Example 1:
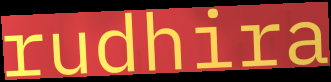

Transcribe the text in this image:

rudhira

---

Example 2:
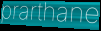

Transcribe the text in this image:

prarthane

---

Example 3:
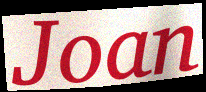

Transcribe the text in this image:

Joan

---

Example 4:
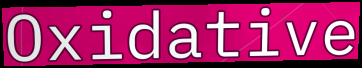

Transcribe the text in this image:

Oxidative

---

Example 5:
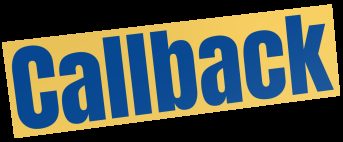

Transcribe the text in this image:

Callback